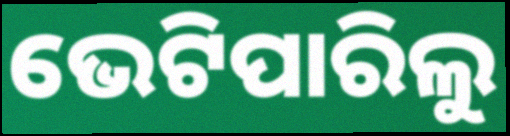
ଭେଟିପାରିଲୁ